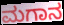
ಮಗಾನ